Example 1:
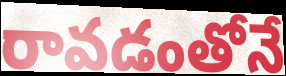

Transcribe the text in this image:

రావడంతోనే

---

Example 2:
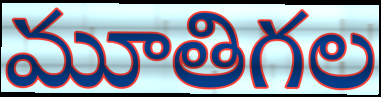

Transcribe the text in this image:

మూతిగల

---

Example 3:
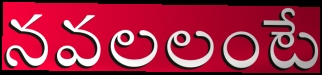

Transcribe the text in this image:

నవలలంటే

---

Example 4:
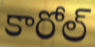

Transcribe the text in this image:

కారోల్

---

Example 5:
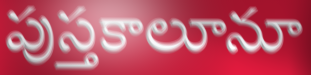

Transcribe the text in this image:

పుస్తకాలూనూ